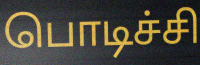
பொடிச்சி